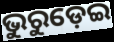
ଭୁରୁଡ଼େଇ